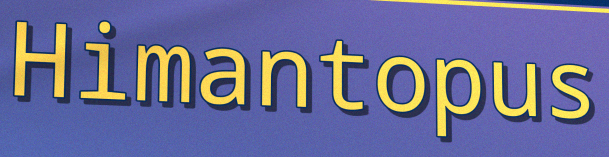
Himantopus